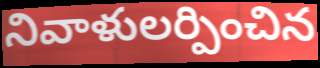
నివాళులర్పించిన